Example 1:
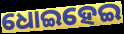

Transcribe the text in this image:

ଧୋଇହେଇ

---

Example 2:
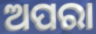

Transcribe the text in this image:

ଅପରା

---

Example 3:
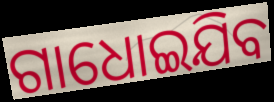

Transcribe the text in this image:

ଗାଧୋଇଯିବ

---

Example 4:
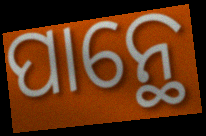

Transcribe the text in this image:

ପାନ୍ଥେ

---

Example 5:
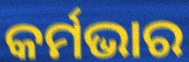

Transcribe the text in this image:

କର୍ମଭାର